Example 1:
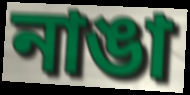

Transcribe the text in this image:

নাঙা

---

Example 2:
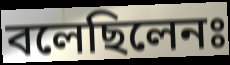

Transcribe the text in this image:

বলেছিলেনঃ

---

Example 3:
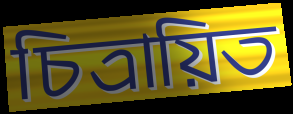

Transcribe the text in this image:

চিত্রায়িত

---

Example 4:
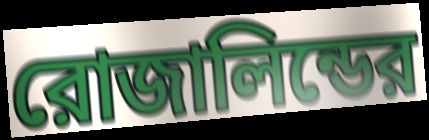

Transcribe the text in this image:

রোজালিন্ডের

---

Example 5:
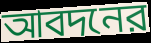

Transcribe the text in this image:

আবদনের